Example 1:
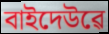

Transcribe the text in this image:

বাইদেউৱে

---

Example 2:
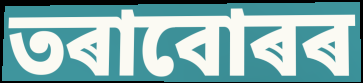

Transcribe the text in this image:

তৰাবোৰৰ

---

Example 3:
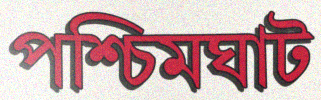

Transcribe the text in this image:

পশ্চিমঘাট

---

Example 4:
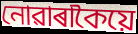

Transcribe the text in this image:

নোৱাৰাকৈয়ে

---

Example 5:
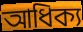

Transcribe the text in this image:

আধিক্য